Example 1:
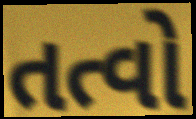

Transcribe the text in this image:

તત્વો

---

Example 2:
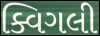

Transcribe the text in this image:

ક્વિગલી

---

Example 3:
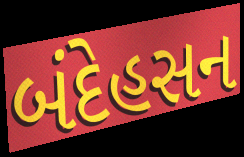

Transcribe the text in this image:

બંદેહસન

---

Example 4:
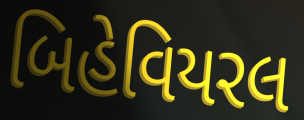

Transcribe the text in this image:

બિહેવિયરલ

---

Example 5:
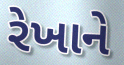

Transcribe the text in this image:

રેખાને